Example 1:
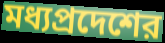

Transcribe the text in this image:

মধ্যপ্রদেশের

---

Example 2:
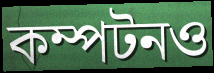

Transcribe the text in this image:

কম্পটনও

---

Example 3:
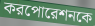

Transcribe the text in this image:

করপোরেশনকে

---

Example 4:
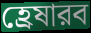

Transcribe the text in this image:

হ্রেষারব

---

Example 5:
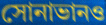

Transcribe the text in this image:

সোনাভানও